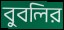
বুবলির